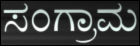
ಸಂಗ್ರಾಮ